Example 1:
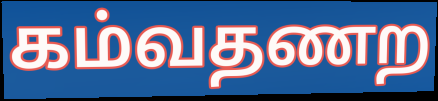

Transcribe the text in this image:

கம்வதணற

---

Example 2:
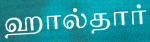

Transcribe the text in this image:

ஹால்தார்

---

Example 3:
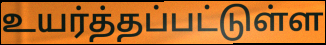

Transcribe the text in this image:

உயர்த்தப்பட்டுள்ள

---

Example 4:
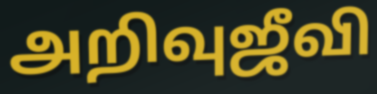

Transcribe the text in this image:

அறிவுஜீவி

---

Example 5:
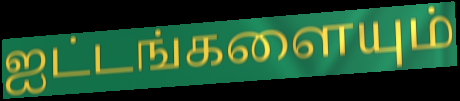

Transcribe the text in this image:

ஐட்டங்களையும்